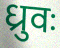
ध्रुवः